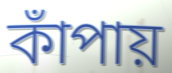
কাঁপায়